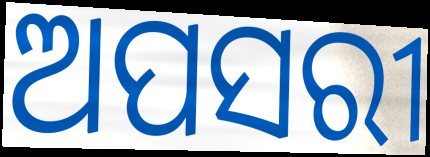
ଅପସରୀ